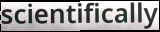
scientifically